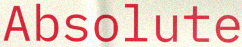
Absolute